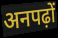
अनपढ़ों